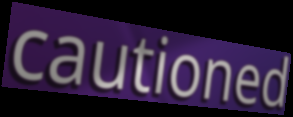
cautioned